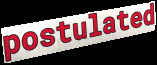
postulated